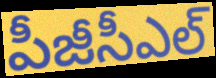
పీజీసీఎల్